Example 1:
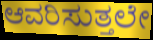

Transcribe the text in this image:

ಆವರಿಸುತ್ತಲೇ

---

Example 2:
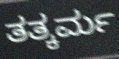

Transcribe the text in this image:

ತತ್ಕರ್ಮ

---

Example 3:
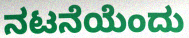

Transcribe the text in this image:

ನಟನೆಯೆಂದು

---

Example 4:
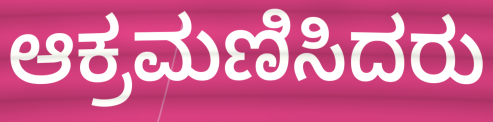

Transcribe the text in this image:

ಆಕ್ರಮಣಿಸಿದರು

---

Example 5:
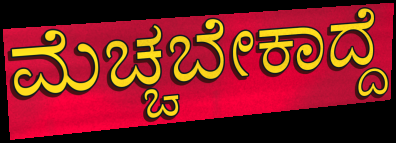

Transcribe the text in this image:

ಮೆಚ್ಚಬೇಕಾದ್ದೆ